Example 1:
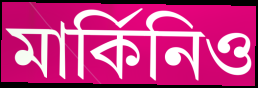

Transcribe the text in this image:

মার্কিনিও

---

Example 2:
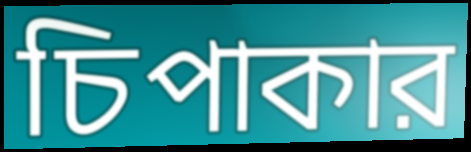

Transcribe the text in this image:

চিপাকার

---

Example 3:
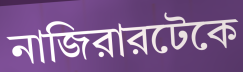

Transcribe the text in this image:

নাজিরারটেকে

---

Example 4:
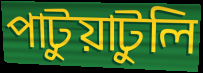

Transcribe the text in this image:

পাটুয়াটুলি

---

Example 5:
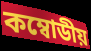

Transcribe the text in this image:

কম্বোডীয়